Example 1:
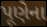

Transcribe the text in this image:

પૂણેના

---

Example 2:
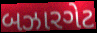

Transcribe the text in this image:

બઝારગેટ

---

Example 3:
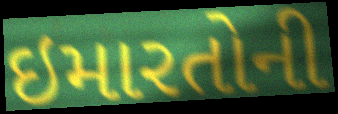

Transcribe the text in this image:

ઇમારતોની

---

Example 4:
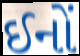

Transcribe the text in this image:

ઈનોં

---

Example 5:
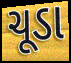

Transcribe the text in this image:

ચૂડા